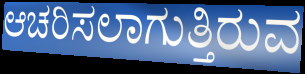
ಆಚರಿಸಲಾಗುತ್ತಿರುವ